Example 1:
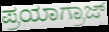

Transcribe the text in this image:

ಪ್ರಯಾಗ್ರಾಜ್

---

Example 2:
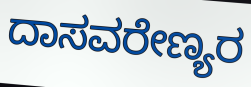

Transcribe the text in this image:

ದಾಸವರೇಣ್ಯರ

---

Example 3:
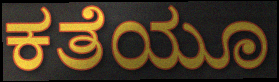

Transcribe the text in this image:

ಕತೆಯೂ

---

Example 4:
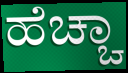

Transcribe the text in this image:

ಹೆಚ್ಚಾ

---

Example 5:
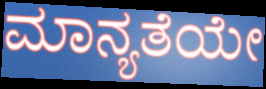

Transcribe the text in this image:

ಮಾನ್ಯತೆಯೇ